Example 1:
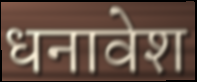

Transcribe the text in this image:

धनावेश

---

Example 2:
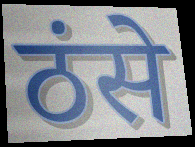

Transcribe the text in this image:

ठंसे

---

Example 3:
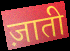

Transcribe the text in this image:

ज़ाती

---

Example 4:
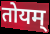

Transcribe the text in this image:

तोयम्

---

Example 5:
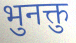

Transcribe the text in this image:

भुनक्तु